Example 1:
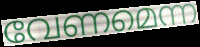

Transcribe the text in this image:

വേണമെന്ന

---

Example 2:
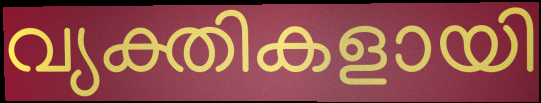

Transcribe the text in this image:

വ്യക്തികളായി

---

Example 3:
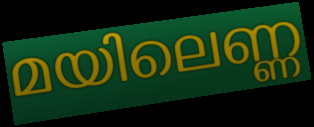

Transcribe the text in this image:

മയിലെണ്ണ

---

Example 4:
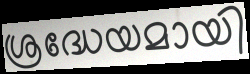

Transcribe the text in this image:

ശ്രദ്ധേയമായി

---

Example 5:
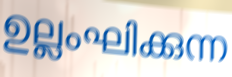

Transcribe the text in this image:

ഉല്ലംഘിക്കുന്ന